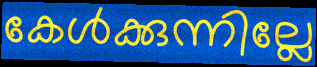
കേൾക്കുന്നില്ലേ